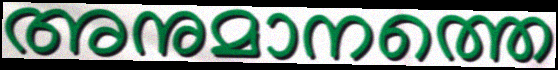
അനുമാനത്തെ